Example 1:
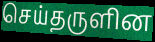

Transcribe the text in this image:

செய்தருளின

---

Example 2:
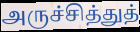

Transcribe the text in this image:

அருச்சித்துத்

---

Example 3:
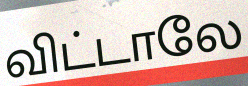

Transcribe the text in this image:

விட்டாலே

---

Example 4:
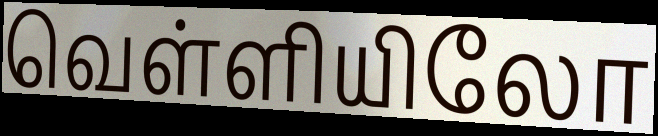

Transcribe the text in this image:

வெள்ளியிலோ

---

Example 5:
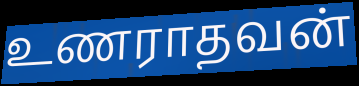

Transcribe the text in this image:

உணராதவன்